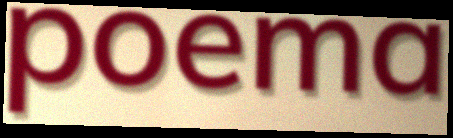
poema